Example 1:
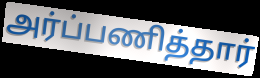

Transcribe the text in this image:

அர்ப்பணித்தார்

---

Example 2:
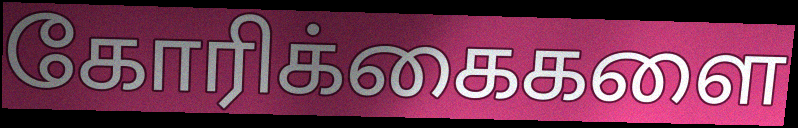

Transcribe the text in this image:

கோரிக்கைகளை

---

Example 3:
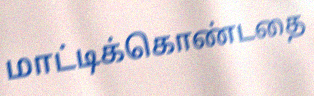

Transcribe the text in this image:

மாட்டிக்கொண்டதை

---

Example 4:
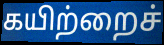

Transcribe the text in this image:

கயிற்றைச்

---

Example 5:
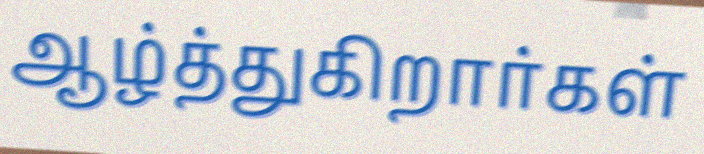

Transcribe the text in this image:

ஆழ்த்துகிறார்கள்